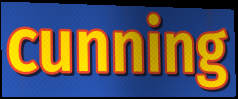
cunning